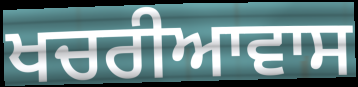
ਖਚਰੀਆਵਾਸ